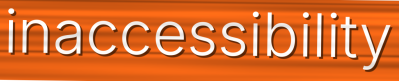
inaccessibility